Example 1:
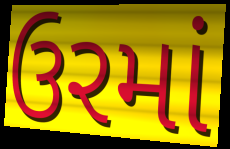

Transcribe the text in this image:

ઉરમાં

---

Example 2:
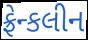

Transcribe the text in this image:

ફ્રેન્કલીન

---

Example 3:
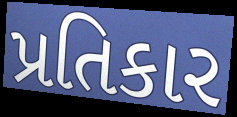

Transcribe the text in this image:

પ્રતિકાર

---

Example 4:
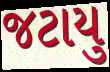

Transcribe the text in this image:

જટાયુ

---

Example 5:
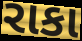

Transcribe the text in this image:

રાકા